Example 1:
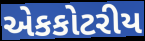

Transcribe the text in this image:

એકકોટરીય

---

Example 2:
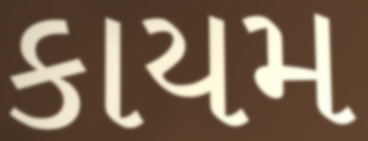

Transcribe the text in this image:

કાયમ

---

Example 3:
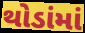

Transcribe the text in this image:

થોડાંમાં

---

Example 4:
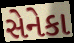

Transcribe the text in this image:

સેનેકા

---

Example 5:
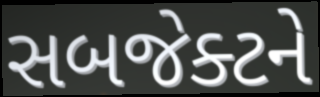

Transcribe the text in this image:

સબજેક્ટને